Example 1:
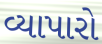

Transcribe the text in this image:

વ્યાપારો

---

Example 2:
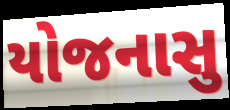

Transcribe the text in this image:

યોજનાસુ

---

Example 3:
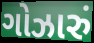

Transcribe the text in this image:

ગોઝારું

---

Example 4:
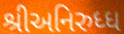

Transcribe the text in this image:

શ્રીઅનિરુધ્ધ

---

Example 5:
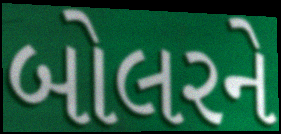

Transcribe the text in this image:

બોલરને